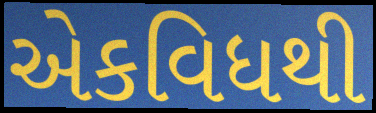
એકવિધથી